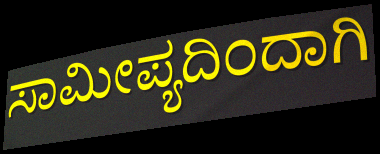
ಸಾಮೀಪ್ಯದಿಂದಾಗಿ